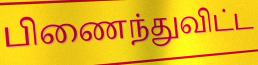
பிணைந்துவிட்ட